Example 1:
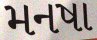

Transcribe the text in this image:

મનષા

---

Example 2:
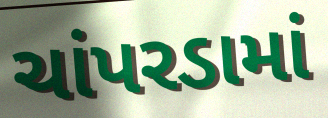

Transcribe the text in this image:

ચાંપરડામાં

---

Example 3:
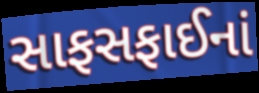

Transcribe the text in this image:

સાફસફાઈનાં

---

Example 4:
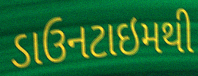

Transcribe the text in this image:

ડાઉનટાઇમથી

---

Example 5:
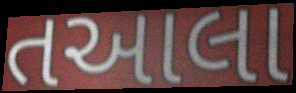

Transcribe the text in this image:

તઆલા